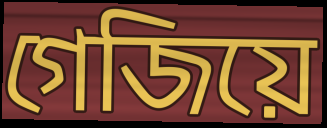
গেজিয়ে